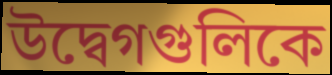
উদ্বেগগুলিকে